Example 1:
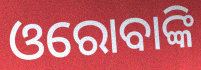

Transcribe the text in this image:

ଓରୋବାଙ୍କି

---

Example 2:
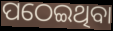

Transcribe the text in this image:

ପଠେଇଥିବା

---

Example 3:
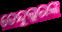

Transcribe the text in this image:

ତେନ୍ଦୁଲ୍କରଙ୍କ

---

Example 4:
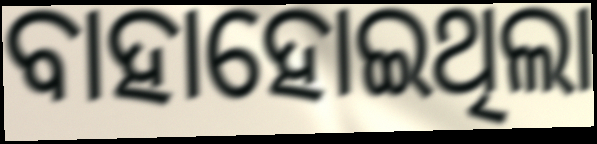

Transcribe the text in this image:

ବାହାହୋଇଥିଲା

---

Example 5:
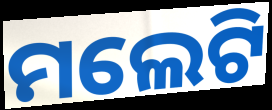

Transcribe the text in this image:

ମଲେଟି